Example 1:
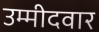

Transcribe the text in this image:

उम्मीदवार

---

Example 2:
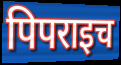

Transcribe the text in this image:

पिपराइच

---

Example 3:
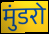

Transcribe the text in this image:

मुंडरो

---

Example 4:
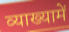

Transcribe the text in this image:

व्याख्यामें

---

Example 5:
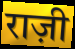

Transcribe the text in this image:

राज़ी